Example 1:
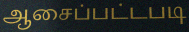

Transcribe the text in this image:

ஆசைப்பட்டபடி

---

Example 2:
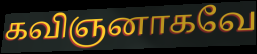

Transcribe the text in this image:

கவிஞனாகவே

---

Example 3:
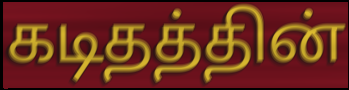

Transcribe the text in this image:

கடிதத்தின்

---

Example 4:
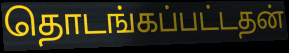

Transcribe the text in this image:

தொடங்கப்பட்டதன்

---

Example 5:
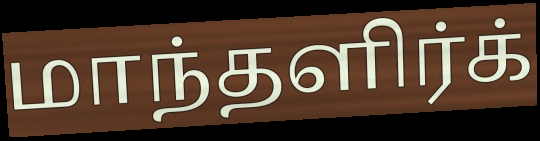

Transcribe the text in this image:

மாந்தளிர்க்